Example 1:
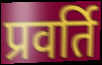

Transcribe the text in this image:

प्रवर्ति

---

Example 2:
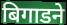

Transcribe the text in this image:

बिगाडने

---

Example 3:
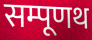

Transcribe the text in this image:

सम्पूणथ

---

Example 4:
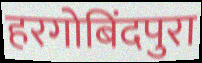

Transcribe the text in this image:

हरगोबिंदपुरा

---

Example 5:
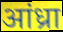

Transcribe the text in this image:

आंध्रा